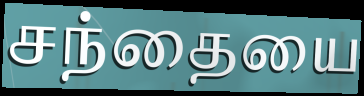
சந்தையை